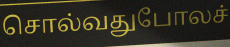
சொல்வதுபோலச்